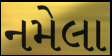
નમેલા